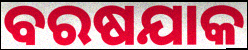
ବରଷଯାକ